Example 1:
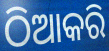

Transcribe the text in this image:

ଠିଆକରି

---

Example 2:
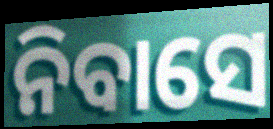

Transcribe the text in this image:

ନିବାସେ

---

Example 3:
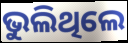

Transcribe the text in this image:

ଭୁଲିଥିଲେ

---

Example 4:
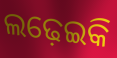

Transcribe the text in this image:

ଲଢ଼େଇକି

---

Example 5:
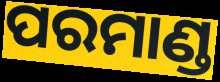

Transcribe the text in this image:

ପରମାଣ୍ଡ